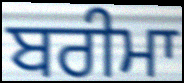
ਬਰੀਮਾ